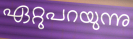
ഏറ്റുപറയുന്നു